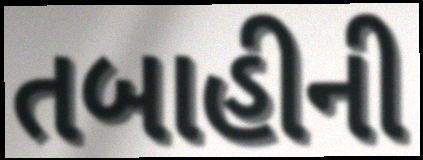
તબાહીની